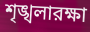
শৃঙ্খলারক্ষা